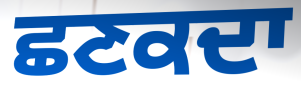
ਛਣਕਦਾ